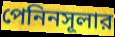
পেনিনসূলার